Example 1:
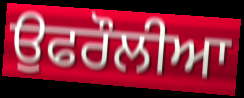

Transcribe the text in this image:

ਉਫਰੌਲੀਆ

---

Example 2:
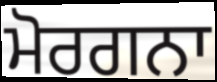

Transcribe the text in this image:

ਮੋਰਗਨਾ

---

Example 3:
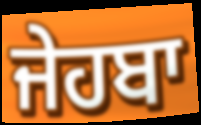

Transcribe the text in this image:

ਜੇਹਬਾ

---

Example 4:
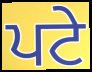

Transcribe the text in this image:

ਪਟੇ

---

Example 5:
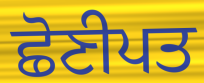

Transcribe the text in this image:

ਛੋਣੀਪਤ